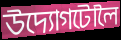
উদ্যোগটোলৈ